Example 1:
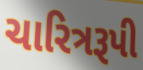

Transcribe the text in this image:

ચારિત્રરૂપી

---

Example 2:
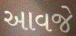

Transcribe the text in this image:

આવજે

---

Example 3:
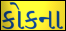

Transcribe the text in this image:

કોકના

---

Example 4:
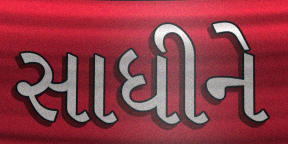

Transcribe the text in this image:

સાધીને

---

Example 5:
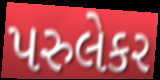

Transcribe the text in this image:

પરુલેકર